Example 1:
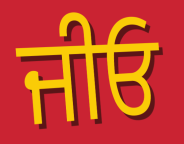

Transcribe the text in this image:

ਜੀਓ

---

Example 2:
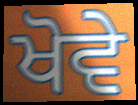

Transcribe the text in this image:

ਖੋਵੇ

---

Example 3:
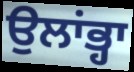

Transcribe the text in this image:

ਉਲਾਂਭ੍ਹਾ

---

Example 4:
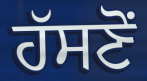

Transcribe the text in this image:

ਹੱਸਣੋਂ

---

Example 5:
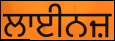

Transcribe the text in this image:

ਲਾਈਨਜ਼